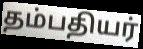
தம்பதியர்